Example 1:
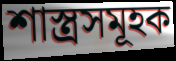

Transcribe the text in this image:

শাস্ত্ৰসমূহক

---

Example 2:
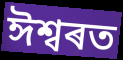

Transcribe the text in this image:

ঈশ্বৰত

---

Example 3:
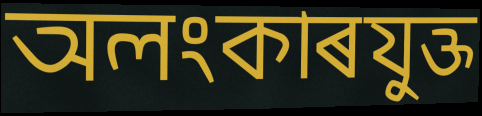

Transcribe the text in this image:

অলংকাৰযুক্ত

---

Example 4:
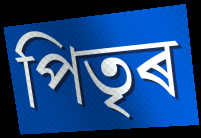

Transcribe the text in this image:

পিতৃৰ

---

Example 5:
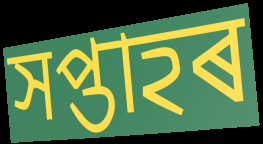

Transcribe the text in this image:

সপ্তাহৰ